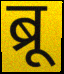
ब्रू